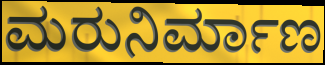
ಮರುನಿರ್ಮಾಣ